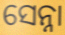
ସେନ୍ନା